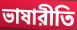
ভাষারীতি